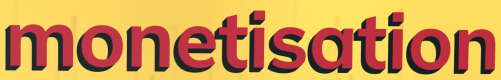
monetisation